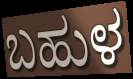
ಬಹುಳ